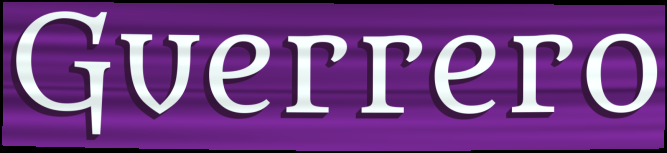
Guerrero